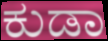
ಕುಡಾ